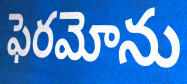
ఫెరమోను